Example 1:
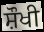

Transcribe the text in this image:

ਸ਼ੌਖੀ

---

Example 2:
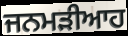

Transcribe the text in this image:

ਜਨਮੜੀਆਹ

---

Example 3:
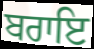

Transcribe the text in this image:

ਬਰਾਇ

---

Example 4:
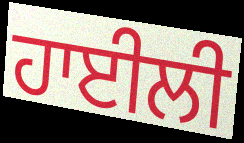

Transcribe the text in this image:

ਹਾਈਲੀ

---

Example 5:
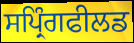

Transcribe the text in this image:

ਸਪ੍ਰਿੰਗਫੀਲਡ